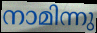
നാമിന്നു